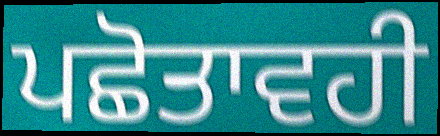
ਪਛੋਤਾਵਹੀ